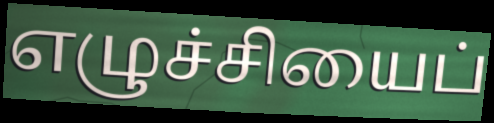
எழுச்சியைப்